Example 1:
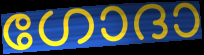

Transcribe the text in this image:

ഗോദാ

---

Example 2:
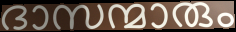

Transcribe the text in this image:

ദാസന്മാരും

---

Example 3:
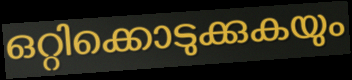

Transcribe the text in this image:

ഒറ്റിക്കൊടുക്കുകയും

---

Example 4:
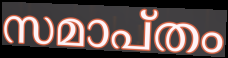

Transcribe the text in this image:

സമാപ്തം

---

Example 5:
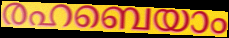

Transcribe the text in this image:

രഹബെയാം